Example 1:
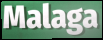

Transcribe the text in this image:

Malaga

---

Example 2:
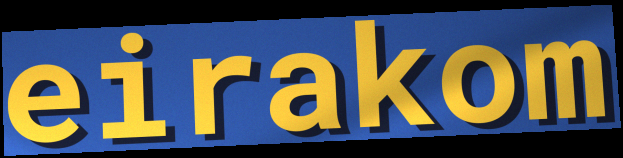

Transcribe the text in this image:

eirakom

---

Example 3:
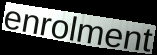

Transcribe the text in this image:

enrolment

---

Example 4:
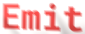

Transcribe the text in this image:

Emit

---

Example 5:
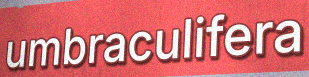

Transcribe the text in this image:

umbraculifera